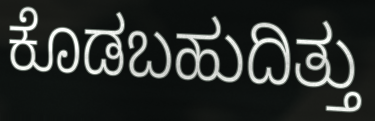
ಕೊಡಬಹುದಿತ್ತು